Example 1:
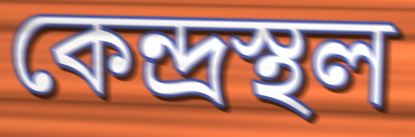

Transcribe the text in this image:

কেন্দ্ৰস্থল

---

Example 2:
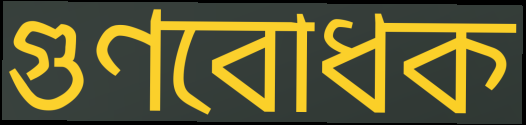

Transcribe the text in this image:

গুণবোধক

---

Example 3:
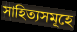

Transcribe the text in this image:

সাহিত্যসমূহে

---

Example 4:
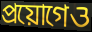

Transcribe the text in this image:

প্ৰয়োগেও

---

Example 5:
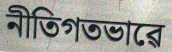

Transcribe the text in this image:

নীতিগতভাৱে